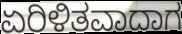
ಏರಿಳಿತವಾದಾಗ